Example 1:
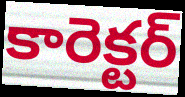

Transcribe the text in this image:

కారెక్టర్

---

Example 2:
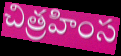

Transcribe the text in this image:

చిత్రహింస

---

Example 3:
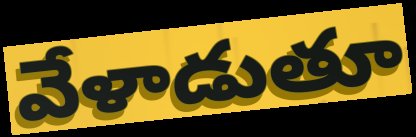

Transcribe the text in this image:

వేళాడుతూ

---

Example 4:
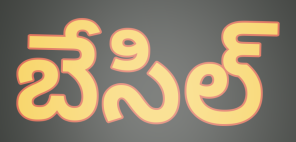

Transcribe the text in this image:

బేసిల్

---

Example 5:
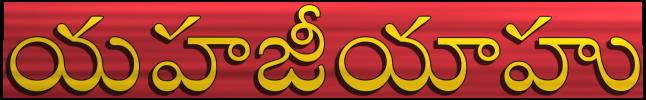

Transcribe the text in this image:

యహజీయాహు